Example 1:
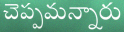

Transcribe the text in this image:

చెప్పమన్నారు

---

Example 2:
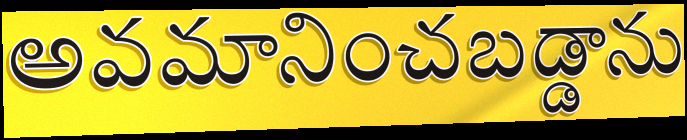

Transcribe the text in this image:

అవమానించబడ్డాను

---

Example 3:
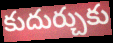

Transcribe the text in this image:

కుదుర్చుకు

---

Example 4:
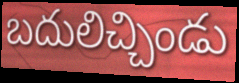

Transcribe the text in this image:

బదులిచ్చిండు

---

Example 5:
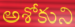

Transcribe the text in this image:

అశోకుని